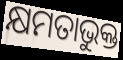
କ୍ଷମତାଭୁକ୍ତ